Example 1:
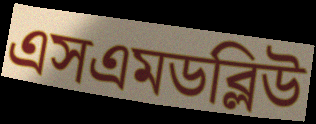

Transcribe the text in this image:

এসএমডব্লিউ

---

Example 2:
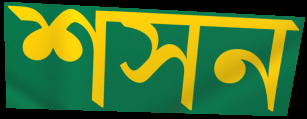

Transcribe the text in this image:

শসন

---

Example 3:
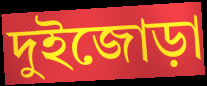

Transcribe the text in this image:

দুইজোড়া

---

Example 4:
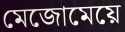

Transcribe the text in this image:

মেজোমেয়ে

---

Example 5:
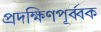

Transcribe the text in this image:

প্রদক্ষিণপূর্ব্বক